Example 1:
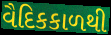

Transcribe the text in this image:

વૈદિકકાળથી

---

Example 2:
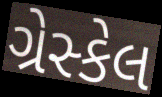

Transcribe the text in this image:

ગ્રેસ્કેલ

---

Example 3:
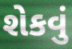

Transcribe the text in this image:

શેકવું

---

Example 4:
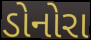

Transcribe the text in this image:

ડોનોરા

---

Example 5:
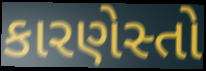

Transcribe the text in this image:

કારણેસ્તો